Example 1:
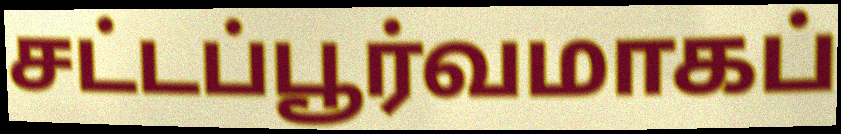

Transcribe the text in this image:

சட்டப்பூர்வமாகப்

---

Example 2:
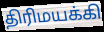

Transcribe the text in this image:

திரிமயக்கி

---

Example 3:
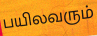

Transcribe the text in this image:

பயிலவரும்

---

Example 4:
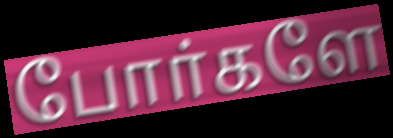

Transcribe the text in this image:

போர்களே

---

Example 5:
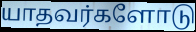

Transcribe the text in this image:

யாதவர்களோடு